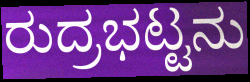
ರುದ್ರಭಟ್ಟನು